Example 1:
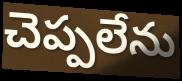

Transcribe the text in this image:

చెప్పలేను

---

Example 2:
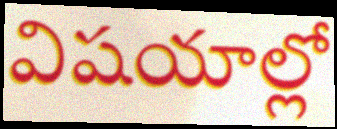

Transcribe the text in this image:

విషయాల్లో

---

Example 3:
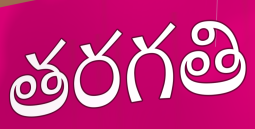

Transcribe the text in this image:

తరగతి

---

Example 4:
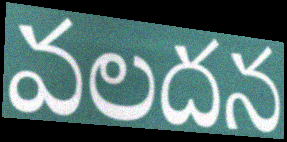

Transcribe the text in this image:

వలదన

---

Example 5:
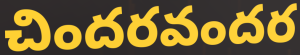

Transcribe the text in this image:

చిందరవందర